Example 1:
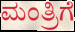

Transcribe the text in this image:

ಮಂತ್ರಿಗೆ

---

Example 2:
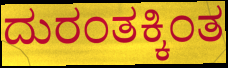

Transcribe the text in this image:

ದುರಂತಕ್ಕಿಂತ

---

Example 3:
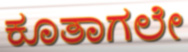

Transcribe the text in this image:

ಕೂತಾಗಲೇ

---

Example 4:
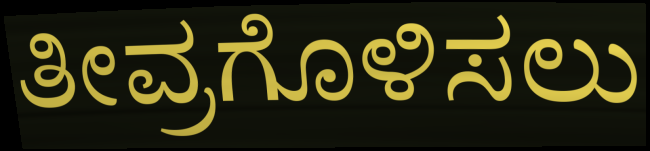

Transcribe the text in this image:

ತೀವ್ರಗೊಳಿಸಲು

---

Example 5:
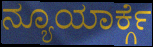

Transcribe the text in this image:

ನ್ಯೂಯಾರ್ಕ್ಗೆ